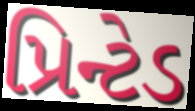
પ્રિન્ટેડ